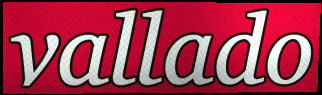
vallado